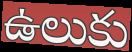
ఉలుకు